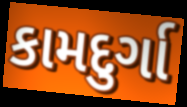
કામદુર્ગા